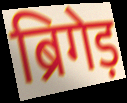
ब्रिगेड़